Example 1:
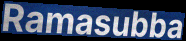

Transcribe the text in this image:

Ramasubba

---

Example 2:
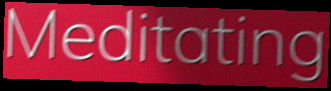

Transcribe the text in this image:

Meditating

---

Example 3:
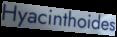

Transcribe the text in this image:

Hyacinthoides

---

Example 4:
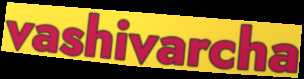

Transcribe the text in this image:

vashivarcha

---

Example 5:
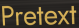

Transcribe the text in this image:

Pretext